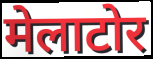
मेलाटोर